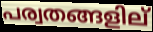
പര്വതങ്ങളില്